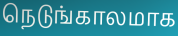
நெடுங்காலமாக